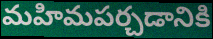
మహిమపర్చడానికి